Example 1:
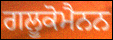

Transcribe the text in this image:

ਗਲੂਕੋਮੈਨਨ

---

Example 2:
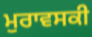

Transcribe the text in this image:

ਮੁਰਾਵਸਕੀ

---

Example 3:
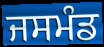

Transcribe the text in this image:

ਜਸਮੰਡ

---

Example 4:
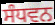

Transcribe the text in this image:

ਸੰਧਵਨ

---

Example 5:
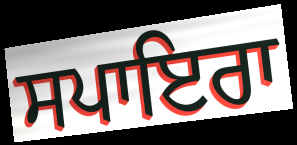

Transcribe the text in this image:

ਸਪਾਇਰਾ